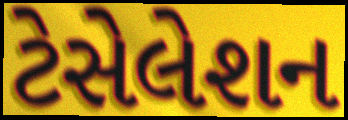
ટેસેલેશન